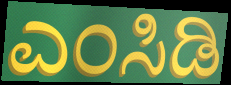
ಎಂಸಿಡಿ